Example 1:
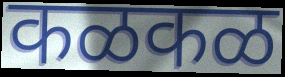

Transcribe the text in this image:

कळकळ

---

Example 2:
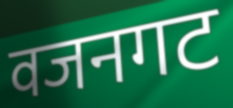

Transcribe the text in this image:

वजनगट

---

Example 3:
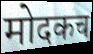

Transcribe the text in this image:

मोदकच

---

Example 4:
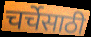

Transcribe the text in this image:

चर्चेसाठी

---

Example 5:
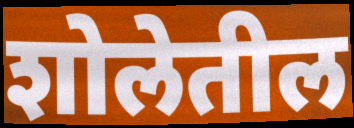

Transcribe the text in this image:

शोलेतील